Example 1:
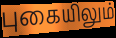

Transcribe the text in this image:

புகையிலும்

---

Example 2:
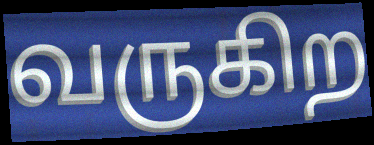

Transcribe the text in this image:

வருகிற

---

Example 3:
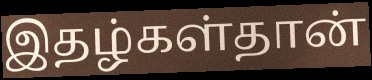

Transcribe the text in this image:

இதழ்கள்தான்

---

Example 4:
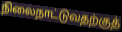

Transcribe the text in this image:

நிலைநாட்டுவதற்குத்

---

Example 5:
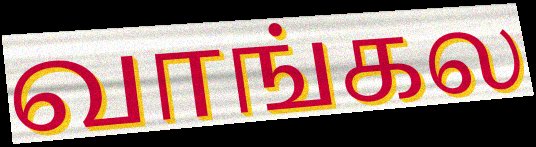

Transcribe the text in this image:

வாங்கல